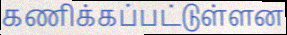
கணிக்கப்பட்டுள்ளன